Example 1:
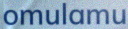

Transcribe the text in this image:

omulamu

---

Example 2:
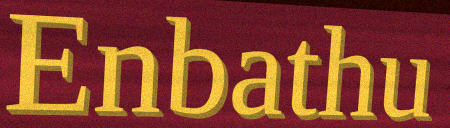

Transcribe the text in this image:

Enbathu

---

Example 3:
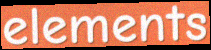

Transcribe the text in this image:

elements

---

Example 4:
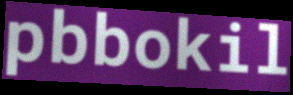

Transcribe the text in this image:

pbbokil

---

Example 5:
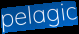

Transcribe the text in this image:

pelagic